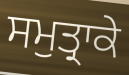
ਸਮੁਤ੍ਰਾਕੇ